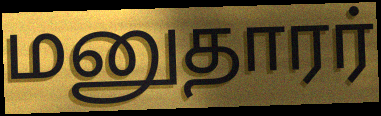
மனுதாரர்